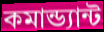
কমান্ড্যান্ট